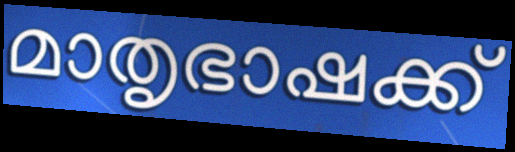
മാതൃഭാഷക്ക്